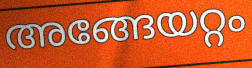
അങ്ങേയറ്റം